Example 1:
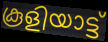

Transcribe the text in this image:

കൂളിയാട്ട്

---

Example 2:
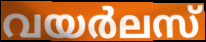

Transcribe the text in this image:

വയർലസ്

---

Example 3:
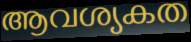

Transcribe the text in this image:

ആവശ്യകത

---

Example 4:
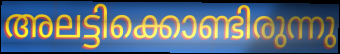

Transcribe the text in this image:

അലട്ടിക്കൊണ്ടിരുന്നു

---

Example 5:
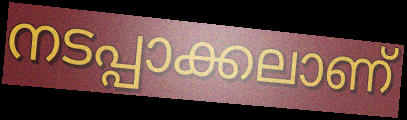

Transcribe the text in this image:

നടപ്പാക്കലാണ്